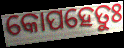
କୋପହେତୁଃ